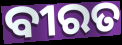
ବୀରତ